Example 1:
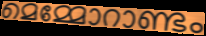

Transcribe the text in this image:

മെമ്മോറാണ്ടം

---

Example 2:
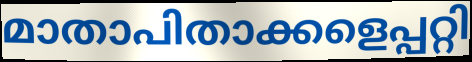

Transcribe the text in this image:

മാതാപിതാക്കളെപ്പറ്റി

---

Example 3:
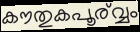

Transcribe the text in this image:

കൗതുകപൂര്വ്വം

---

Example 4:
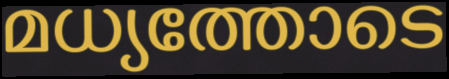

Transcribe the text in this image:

മധ്യത്തോടെ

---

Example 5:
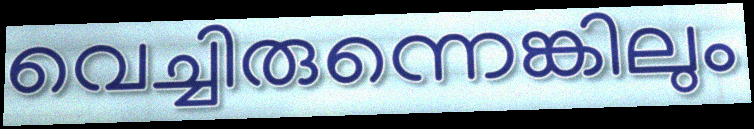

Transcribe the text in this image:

വെച്ചിരുന്നെങ്കിലും